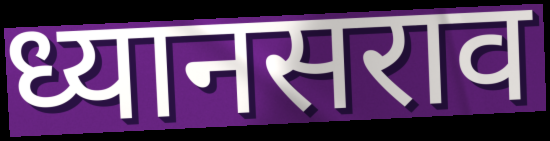
ध्यानसराव